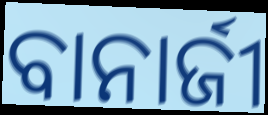
ବାନାର୍ଜୀ